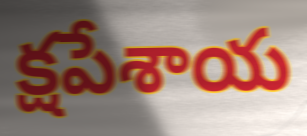
క్షపేశాయ